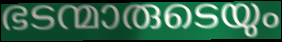
ഭടന്മാരുടെയും